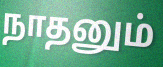
நாதனும்